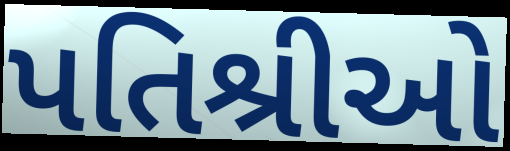
પતિશ્રીઓ